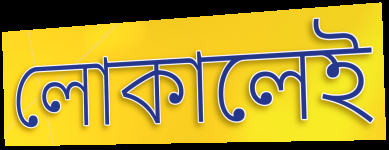
লোকালেই